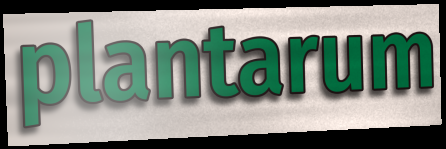
plantarum